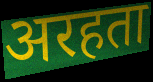
अरहता